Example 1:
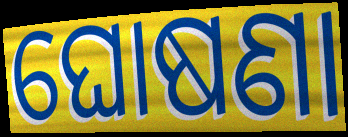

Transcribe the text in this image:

ଘୋଷଣା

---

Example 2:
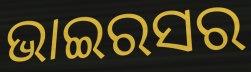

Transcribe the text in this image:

ଭାଇରସର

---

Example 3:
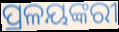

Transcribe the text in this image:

ପ୍ରଳୟଙ୍କରୀ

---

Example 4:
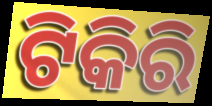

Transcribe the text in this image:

ଟିକିରି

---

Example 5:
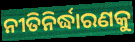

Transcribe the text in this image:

ନୀତିନିର୍ଦ୍ଧାରଣକୁ